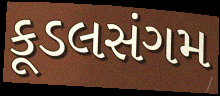
કૂડલસંગમ